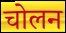
चोलन